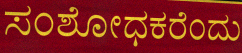
ಸಂಶೋಧಕರೆಂದು